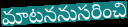
మాటననుసరించి